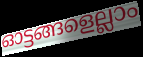
ഓട്ടങ്ങളെല്ലാം